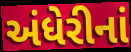
અંધેરીનાં